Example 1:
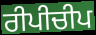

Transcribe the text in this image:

ਰੀਪੀਚੀਪ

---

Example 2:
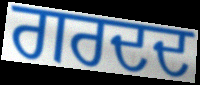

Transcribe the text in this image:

ਗਰਦਦ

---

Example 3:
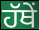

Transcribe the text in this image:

ਹੱਥੇਂ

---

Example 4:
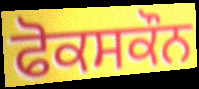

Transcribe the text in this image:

ਫੋਕਸਕੌਨ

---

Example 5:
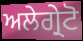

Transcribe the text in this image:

ਅਲੇਗ੍ਰੇਟੋ